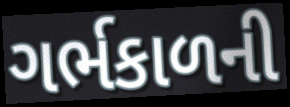
ગર્ભકાળની